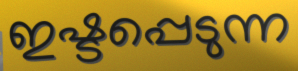
ഇഷ്ടപ്പെടുന്ന